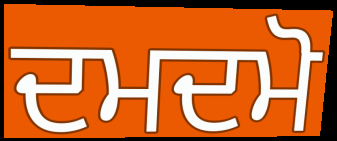
ਦਮਦਮੋ